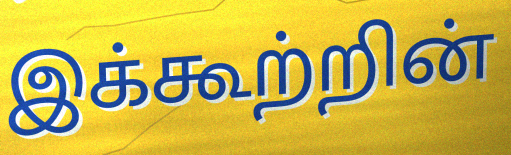
இக்கூற்றின்